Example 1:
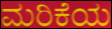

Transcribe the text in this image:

ಮರಿಕೆಯ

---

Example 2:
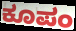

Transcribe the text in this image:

ಕೂಪಂ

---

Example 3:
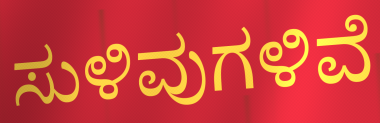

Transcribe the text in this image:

ಸುಳಿವುಗಳಿವೆ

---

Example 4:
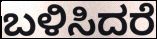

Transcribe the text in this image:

ಬಳಿಸಿದರೆ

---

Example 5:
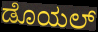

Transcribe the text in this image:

ಡೊಯಲ್